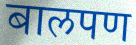
बालपण